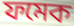
ফমেক